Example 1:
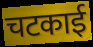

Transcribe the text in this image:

चटकाई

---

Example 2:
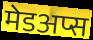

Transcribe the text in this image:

मेडअप्स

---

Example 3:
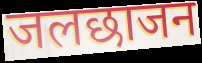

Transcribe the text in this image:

जलछाजन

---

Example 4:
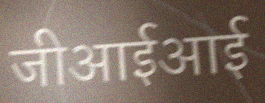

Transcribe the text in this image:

जीआईआई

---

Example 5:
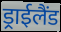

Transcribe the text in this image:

ड्राईलैंड